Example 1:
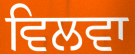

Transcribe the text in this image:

ਵਿਲਵਾ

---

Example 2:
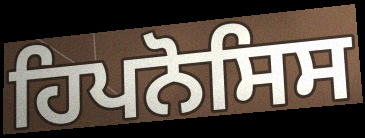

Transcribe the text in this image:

ਹਿਪਨੋਸਿਸ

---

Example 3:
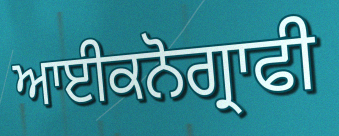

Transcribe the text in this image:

ਆਈਕਨੋਗ੍ਰਾਫੀ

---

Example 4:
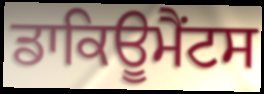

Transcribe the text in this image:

ਡਾਕਿਊਮੈਂਟਸ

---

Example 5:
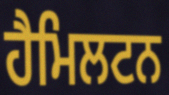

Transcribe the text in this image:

ਹੈਮਿਲਟਨ